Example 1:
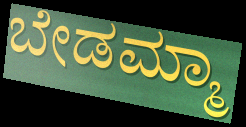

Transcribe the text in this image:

ಬೇಡಮ್ಮಾ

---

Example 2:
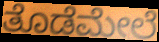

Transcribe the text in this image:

ತೊಡೆಮೇಲೆ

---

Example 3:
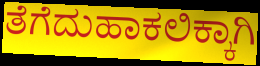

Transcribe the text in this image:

ತೆಗೆದುಹಾಕಲಿಕ್ಕಾಗಿ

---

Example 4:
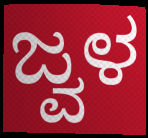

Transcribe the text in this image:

ಜ್ವಳ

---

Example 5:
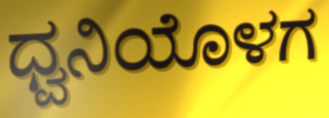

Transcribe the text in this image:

ಧ್ವನಿಯೊಳಗ